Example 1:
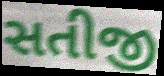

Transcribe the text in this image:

સતીજી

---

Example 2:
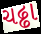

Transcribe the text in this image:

ચઢ્ઢા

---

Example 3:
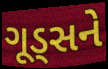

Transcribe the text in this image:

ગૂડ્સને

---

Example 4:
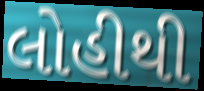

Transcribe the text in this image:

લોહીથી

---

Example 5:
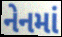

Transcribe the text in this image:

નેનમાં